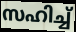
സഹിച്ച്